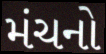
મંચનો